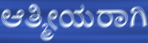
ಆತ್ಮೀಯರಾಗಿ